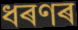
ধৰণৰ